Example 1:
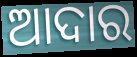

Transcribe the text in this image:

ଆଦାର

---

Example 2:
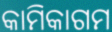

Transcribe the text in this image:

କାମିକାଗମ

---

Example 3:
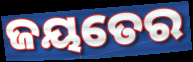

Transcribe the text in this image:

ଜୟତେର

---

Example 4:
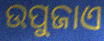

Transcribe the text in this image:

ଉପୁଜାଏ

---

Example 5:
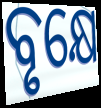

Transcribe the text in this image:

ବୃକ୍ଷେ